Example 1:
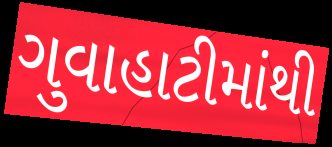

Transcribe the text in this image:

ગુવાહાટીમાંથી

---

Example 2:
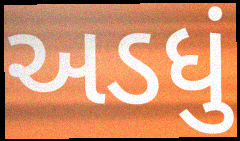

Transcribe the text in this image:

અડધું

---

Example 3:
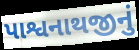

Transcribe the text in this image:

પાશ્વનાથજીનું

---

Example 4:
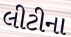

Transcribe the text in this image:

લીટીના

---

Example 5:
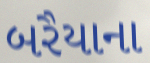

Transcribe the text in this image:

બરૈયાના